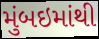
મુંબઇમાંથી